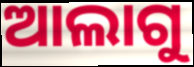
ଆଲାଗୁ